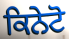
ਕਿਨੇਟੋ